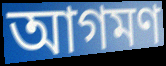
আগমণ